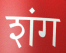
शंग